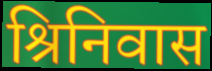
श्रिनिवास